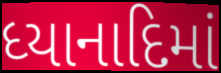
ધ્યાનાદિમાં